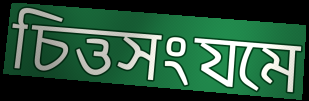
চিত্তসংযমে